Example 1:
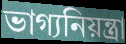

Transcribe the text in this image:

ভাগ্যনিয়ন্ত্রা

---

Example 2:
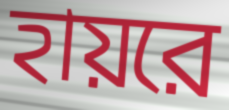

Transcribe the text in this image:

হায়রে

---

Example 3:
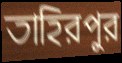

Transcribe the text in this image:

তাহিরপুর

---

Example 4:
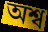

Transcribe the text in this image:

অশ্ব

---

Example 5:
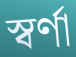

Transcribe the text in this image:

স্বর্ণা